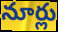
నూర్లు